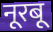
नूरबू